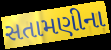
સતામણીના